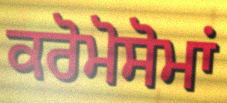
ਕਰੋਮੋਸੋਮਾਂ